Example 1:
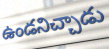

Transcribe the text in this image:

ఉండనిచ్చాడు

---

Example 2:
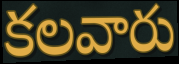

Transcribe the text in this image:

కలవారు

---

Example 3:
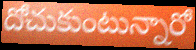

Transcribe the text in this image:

దోచుకుంటున్నారో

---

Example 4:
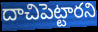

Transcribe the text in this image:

దాచిపెట్టారని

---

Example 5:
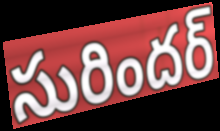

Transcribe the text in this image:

సురిందర్